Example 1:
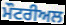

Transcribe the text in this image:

ਮੌਟਰੀਅਲ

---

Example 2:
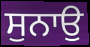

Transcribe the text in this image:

ਸੁਨਾਉ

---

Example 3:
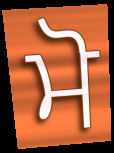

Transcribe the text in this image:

ਮੋ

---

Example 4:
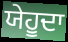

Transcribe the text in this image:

ਯੇਹੂਦਾ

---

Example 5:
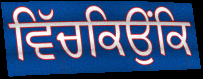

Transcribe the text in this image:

ਵਿੱਚਕਿਉਂਕਿ